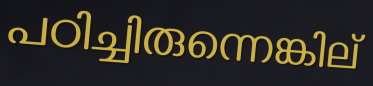
പഠിച്ചിരുന്നെങ്കില്